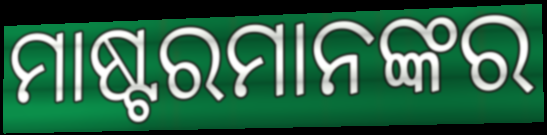
ମାଷ୍ଟରମାନଙ୍କର